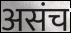
असंच